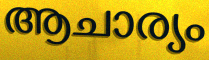
ആചാര്യം